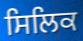
ਸਿਲਿਕ